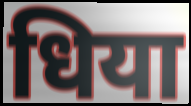
धिया